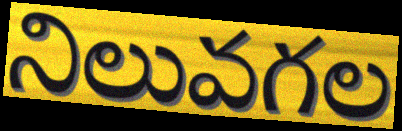
నిలువగల